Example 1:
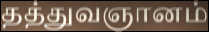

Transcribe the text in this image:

தத்துவஞானம்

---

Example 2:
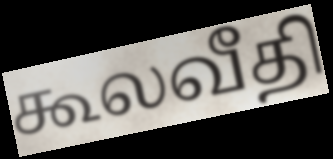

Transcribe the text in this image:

கூலவீதி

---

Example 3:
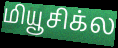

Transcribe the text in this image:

மியூசிக்ல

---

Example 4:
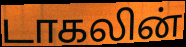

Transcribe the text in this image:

டாகலின்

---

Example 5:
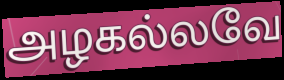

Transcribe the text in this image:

அழகல்லவே